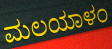
ಮಲಯಾಳಂ